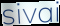
sivai